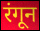
रंगून